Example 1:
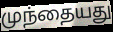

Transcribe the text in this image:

முந்தையது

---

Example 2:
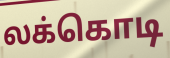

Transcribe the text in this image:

லக்கொடி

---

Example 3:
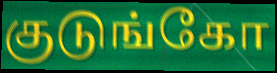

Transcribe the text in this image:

குடுங்கோ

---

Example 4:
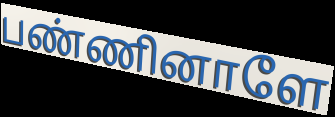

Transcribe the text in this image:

பண்ணினாளே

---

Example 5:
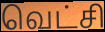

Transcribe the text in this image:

வெட்சி